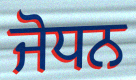
ਜੋਧਨ